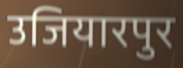
उजियारपुर